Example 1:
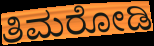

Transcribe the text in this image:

ತಿಮರೋಡಿ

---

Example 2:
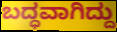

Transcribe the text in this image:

ಬದ್ಧವಾಗಿದ್ದು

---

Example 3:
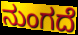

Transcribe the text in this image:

ನುಂಗದೆ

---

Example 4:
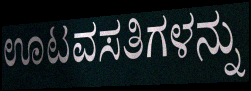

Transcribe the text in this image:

ಊಟವಸತಿಗಳನ್ನು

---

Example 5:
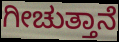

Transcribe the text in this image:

ಗೀಚುತ್ತಾನೆ